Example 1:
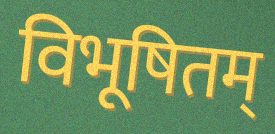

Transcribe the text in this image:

विभूषितम्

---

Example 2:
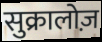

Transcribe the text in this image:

सुक्रालोज़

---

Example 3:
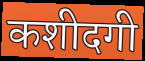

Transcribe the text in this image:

कशीदगी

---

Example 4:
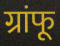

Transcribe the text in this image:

ग्रांफू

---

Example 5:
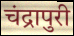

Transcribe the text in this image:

चंद्रापुरी